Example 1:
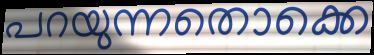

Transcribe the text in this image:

പറയുന്നതൊക്കെ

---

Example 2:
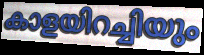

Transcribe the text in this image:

കാളയിറച്ചിയും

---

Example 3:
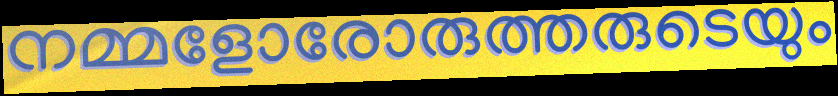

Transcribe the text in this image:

നമ്മളോരോരുത്തരുടെയും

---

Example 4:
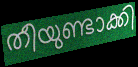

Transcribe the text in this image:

തീയുണ്ടാക്കി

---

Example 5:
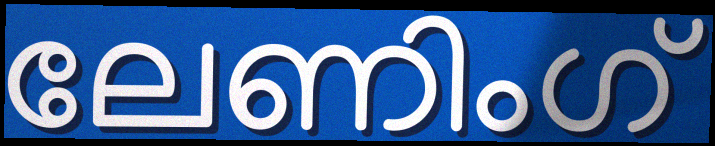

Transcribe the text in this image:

ലേണിംഗ്